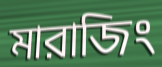
মারাজিং